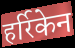
हर्रिकेन